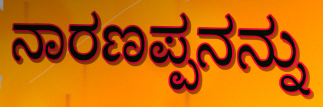
ನಾರಣಪ್ಪನನ್ನು